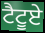
ਟੈਟੂਏ